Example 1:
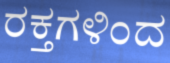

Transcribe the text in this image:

ರಕ್ತಗಳಿಂದ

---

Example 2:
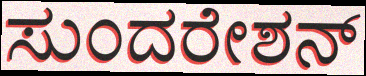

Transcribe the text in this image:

ಸುಂದರೇಶನ್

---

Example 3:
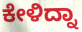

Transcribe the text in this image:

ಕೇಳಿದ್ನಾ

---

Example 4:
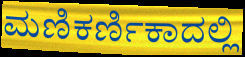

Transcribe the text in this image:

ಮಣಿಕರ್ಣಿಕಾದಲ್ಲಿ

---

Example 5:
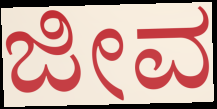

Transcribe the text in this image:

ಜೀವ